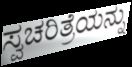
ಸ್ವಚರಿತ್ರೆಯನ್ನು